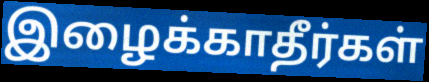
இழைக்காதீர்கள்